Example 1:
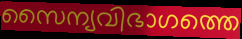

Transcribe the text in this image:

സൈന്യവിഭാഗത്തെ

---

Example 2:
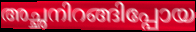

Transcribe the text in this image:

അച്ഛനിറങ്ങിപ്പോയ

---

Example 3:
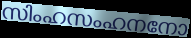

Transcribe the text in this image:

സിംഹസംഹനനോ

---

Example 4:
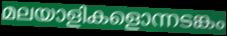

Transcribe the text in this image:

മലയാളികളൊന്നടങ്കം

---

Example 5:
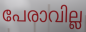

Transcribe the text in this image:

പേരാവില്ല